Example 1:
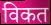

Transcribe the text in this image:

विकत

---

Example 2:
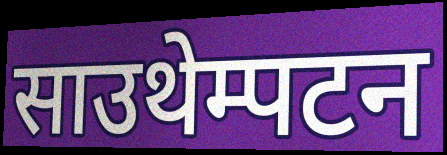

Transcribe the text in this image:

साउथेम्पटन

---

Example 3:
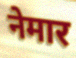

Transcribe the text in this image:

नेमार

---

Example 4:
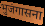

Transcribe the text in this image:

भुजंगासना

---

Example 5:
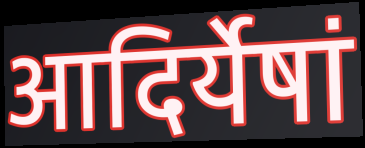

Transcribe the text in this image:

आदिर्येषां